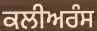
ਕਲੀਅਰੰਸ